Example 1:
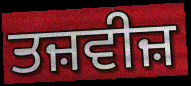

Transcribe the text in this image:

ਤਜ਼ਵੀਜ਼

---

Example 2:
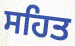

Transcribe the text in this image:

ਸਹਿਤ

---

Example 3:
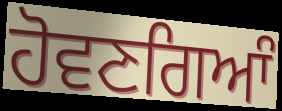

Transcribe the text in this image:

ਹੋਵਣਗਿਆੰ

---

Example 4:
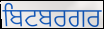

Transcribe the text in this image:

ਬਿਟਬਰਗਰ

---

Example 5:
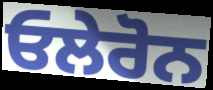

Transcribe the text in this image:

ਓਲੇਰੋਨ